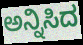
ಅನ್ನಿಸಿದ